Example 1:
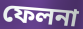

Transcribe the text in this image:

ফেলনা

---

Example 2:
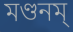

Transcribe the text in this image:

মণ্ডনম্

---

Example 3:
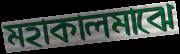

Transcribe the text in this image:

মহাকালমাঝে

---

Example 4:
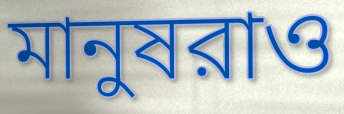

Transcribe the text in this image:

মানুষরাও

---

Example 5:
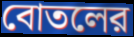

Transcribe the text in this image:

বোতলের